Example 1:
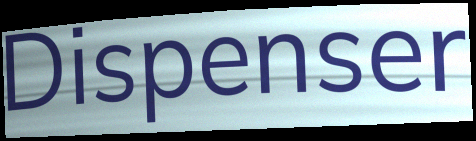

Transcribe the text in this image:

Dispenser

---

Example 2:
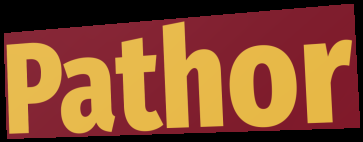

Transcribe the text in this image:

Pathor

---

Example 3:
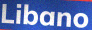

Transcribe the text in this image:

Libano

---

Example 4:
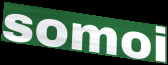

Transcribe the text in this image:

somoi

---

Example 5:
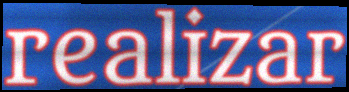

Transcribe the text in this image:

realizar